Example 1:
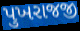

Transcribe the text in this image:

પુખરાજજી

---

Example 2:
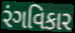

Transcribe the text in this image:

રંગવિકાર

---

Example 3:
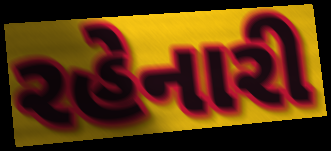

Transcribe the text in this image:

રહેનારી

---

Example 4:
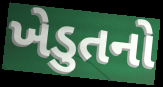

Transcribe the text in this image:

ખેડુતનો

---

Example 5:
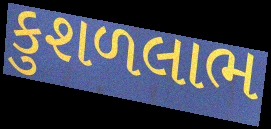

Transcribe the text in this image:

કુશળલાભ